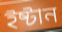
ইষ্টান